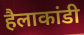
हैलाकांडी